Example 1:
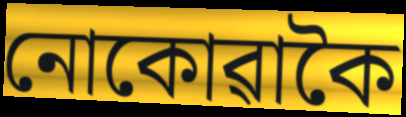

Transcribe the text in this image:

নোকোৱাকৈ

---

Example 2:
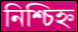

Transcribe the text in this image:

নিশ্চিহ্ন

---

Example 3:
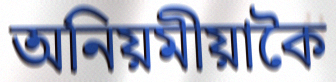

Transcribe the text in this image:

অনিয়মীয়াকৈ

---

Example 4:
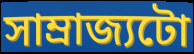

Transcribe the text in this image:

সাম্ৰাজ্যটো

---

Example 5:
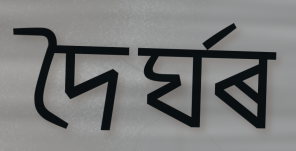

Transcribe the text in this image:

দৈৰ্ঘৰ